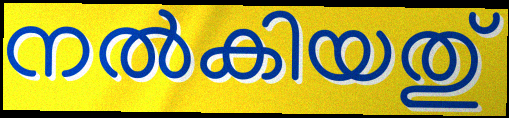
നൽകിയതു്